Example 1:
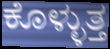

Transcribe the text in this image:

ಕೊಳ್ಳುತ್ತ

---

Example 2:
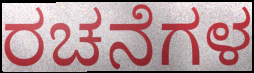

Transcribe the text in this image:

ರಚನೆಗಳ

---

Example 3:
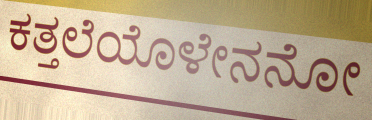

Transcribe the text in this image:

ಕತ್ತಲೆಯೊಳೇನನೋ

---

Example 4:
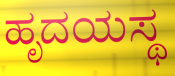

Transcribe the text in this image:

ಹೃದಯಸ್ಥ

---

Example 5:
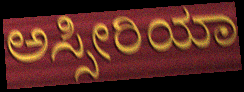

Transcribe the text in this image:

ಅಸ್ಸೀರಿಯಾ